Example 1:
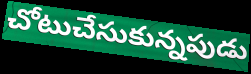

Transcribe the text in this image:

చోటుచేసుకున్నపుడు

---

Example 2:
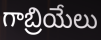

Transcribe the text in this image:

గాబ్రియేలు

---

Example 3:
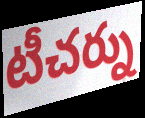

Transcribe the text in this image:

టీచర్ను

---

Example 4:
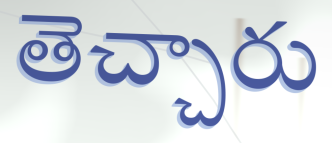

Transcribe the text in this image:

తెచ్చారు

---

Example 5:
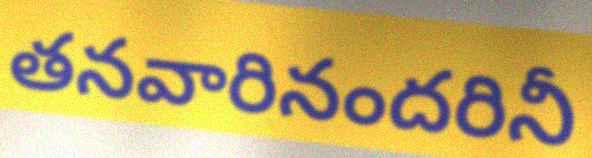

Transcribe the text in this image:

తనవారినందరినీ